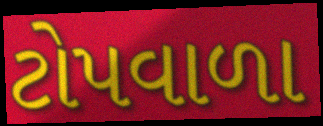
ટોપવાળા